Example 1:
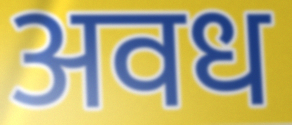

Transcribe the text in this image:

अवध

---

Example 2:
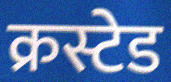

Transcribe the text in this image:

क्रस्टेड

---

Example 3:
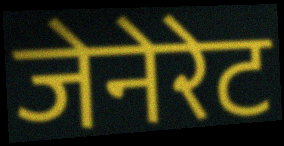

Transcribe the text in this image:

जेनेरेट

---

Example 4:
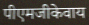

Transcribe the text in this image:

पीएमजीकेवाय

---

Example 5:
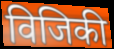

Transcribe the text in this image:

विजिकी